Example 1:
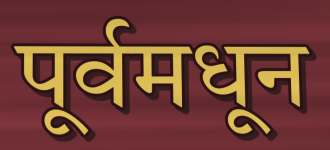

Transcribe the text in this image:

पूर्वमधून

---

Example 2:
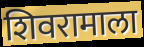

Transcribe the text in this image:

शिवरामाला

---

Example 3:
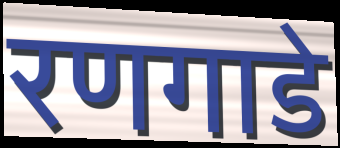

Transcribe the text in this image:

रणगाडे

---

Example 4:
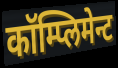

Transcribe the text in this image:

कॉम्प्लिमेन्ट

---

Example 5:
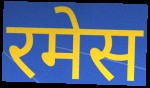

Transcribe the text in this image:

रमेस